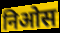
निओस